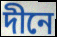
দীনে